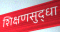
शिक्षणसुद्धा